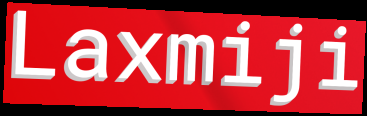
Laxmiji